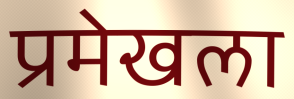
प्रमेखला